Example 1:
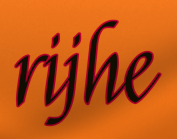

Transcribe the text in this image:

rijhe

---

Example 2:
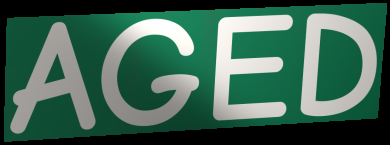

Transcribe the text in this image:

AGED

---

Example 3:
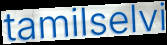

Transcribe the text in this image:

tamilselvi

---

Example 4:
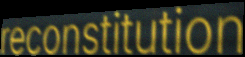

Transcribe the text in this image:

reconstitution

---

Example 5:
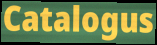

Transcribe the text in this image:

Catalogus